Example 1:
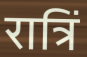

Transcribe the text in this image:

रात्रिं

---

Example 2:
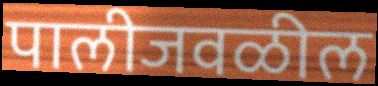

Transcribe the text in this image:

पालीजवळील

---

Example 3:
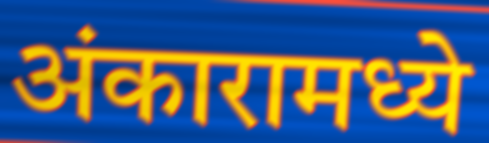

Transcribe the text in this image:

अंकारामध्ये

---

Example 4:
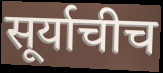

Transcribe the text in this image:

सूर्याचीच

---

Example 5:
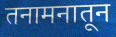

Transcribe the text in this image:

तनामनातून